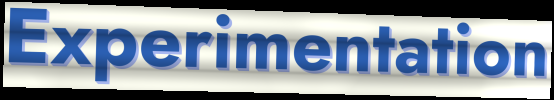
Experimentation